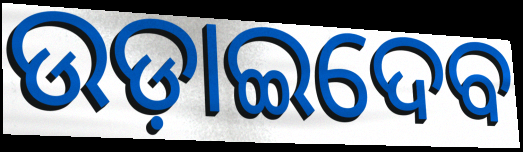
ଉଡ଼ାଇଦେବ